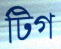
টিগ